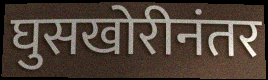
घुसखोरीनंतर